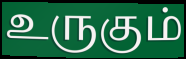
உருகும்